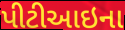
પીટીઆઇના